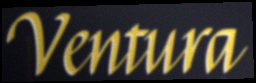
Ventura